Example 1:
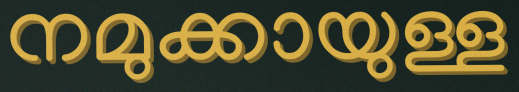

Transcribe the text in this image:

നമുക്കായുള്ള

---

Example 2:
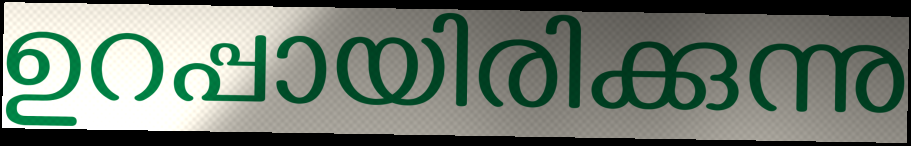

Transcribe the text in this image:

ഉറപ്പായിരിക്കുന്നു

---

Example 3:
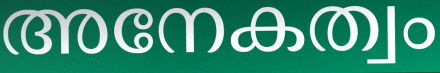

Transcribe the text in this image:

അനേകത്വം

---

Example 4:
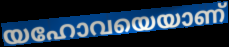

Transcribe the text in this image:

യഹോവയെയാണ്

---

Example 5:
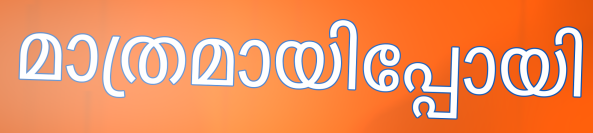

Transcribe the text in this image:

മാത്രമായിപ്പോയി